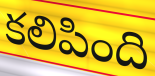
కలిపింది